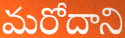
మరోదాని